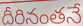
దీరినంతనే